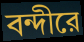
বন্দীরে